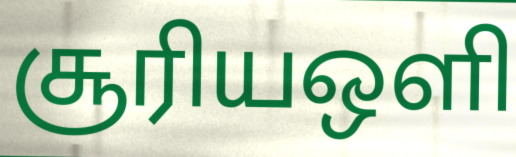
சூரியஒளி